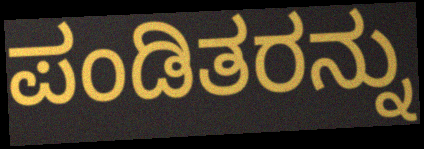
ಪಂಡಿತರನ್ನು